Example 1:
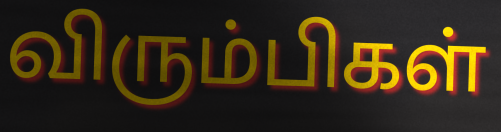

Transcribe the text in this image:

விரும்பிகள்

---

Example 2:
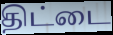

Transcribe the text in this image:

திட்டை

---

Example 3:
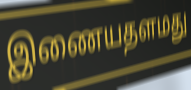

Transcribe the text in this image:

இணையதளமது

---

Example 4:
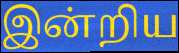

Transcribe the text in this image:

இன்றிய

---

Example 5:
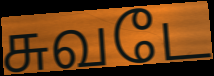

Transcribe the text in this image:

சுவடே